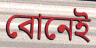
বোনেই